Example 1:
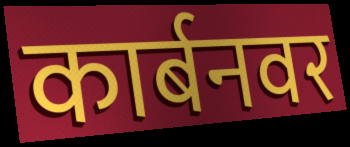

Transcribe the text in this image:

कार्बनवर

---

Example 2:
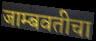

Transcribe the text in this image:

जाम्बवतीचा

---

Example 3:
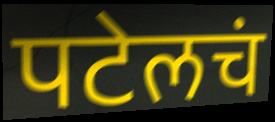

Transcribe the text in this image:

पटेलचं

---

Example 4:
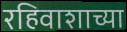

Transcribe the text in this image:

रहिवाशाच्या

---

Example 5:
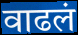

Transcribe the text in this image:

वाढलं